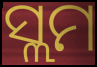
ସ୍ଲମ